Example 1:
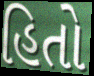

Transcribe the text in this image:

હિતો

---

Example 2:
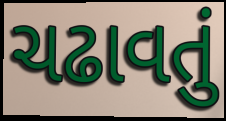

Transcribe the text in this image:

ચઢાવતું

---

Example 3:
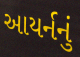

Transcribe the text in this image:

આયર્નનું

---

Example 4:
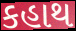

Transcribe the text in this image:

કહાથ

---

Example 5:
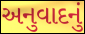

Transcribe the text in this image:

અનુવાદનું